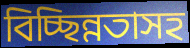
বিচ্ছিন্নতাসহ